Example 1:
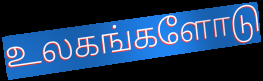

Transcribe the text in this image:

உலகங்களோடு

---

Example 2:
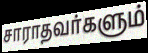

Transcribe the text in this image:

சாராதவர்களும்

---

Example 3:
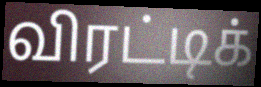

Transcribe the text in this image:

விரட்டிக்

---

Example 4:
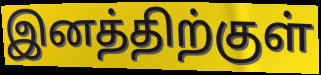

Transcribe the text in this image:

இனத்திற்குள்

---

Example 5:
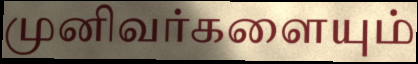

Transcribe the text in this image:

முனிவர்களையும்